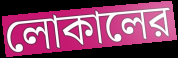
লোকালের